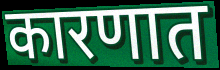
कारणात